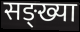
सङ्ख्या